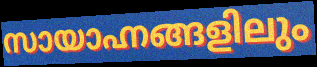
സായാഹ്നങ്ങളിലും